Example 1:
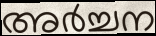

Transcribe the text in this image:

അർച്ചന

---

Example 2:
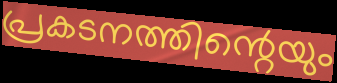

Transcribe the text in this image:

പ്രകടനത്തിന്റെയും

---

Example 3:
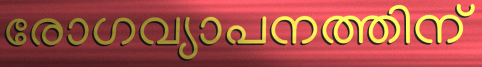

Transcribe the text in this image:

രോഗവ്യാപനത്തിന്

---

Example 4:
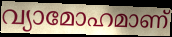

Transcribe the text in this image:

വ്യാമോഹമാണ്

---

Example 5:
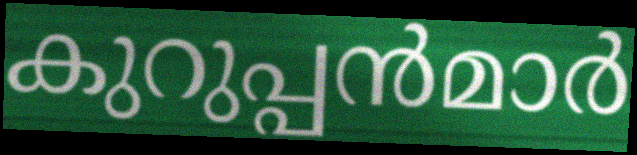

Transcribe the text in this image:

കുറുപ്പൻമാർ